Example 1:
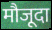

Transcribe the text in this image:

मौजूदा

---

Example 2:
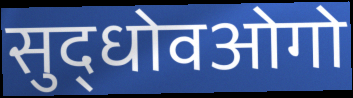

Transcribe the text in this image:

सुद्धोवओगो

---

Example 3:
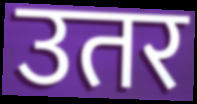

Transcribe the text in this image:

उतर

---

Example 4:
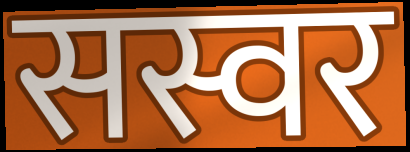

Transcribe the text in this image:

सस्वर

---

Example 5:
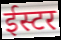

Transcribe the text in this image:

ईस्टर